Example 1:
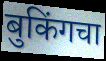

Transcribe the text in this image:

बुकिंगचा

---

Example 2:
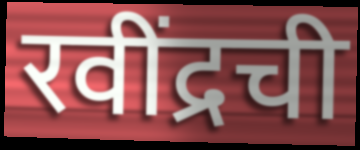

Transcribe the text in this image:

रवींद्रची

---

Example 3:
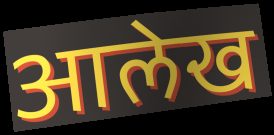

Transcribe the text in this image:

आलेख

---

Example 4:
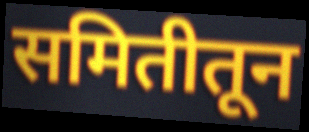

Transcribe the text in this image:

समितीतून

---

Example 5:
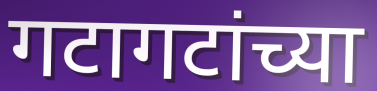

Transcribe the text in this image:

गटागटांच्या